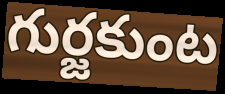
గుర్జకుంట